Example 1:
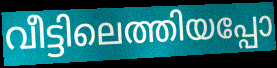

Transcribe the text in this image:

വീട്ടിലെത്തിയപ്പോ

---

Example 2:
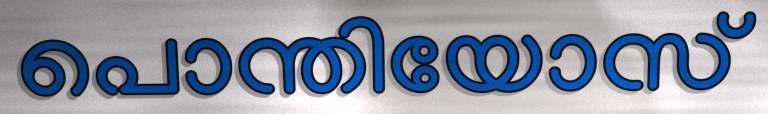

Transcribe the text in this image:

പൊന്തിയോസ്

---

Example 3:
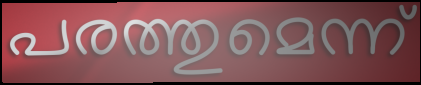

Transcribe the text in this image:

പരത്തുമെന്ന്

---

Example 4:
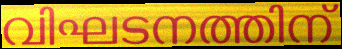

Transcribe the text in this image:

വിഘടനത്തിന്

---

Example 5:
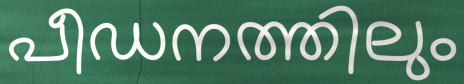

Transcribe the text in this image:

പീഡനത്തിലും